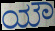
ಯೌ